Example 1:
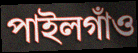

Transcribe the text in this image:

পাইলগাঁও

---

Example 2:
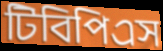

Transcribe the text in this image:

টিবিপিএস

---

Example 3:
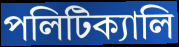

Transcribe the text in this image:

পলিটিক্যালি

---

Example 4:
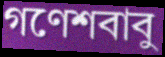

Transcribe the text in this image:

গণেশবাবু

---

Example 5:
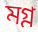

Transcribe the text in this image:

মগ্ন